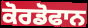
ਕੋਰਡੋਫਾਨ